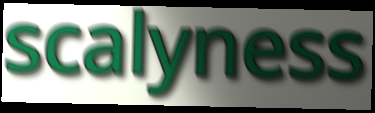
scalyness